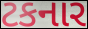
ટકનાર